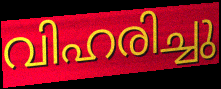
വിഹരിച്ചു